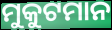
ମୁକୁଟମାନ